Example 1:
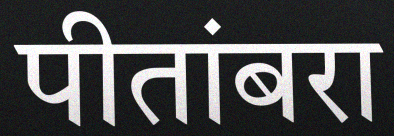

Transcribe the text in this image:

पीतांबरा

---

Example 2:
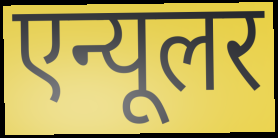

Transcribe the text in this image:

एन्यूलर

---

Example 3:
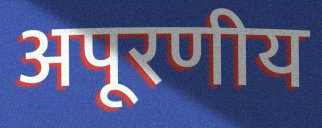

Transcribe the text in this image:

अपूरणीय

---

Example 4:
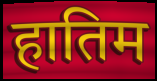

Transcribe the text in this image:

हातिम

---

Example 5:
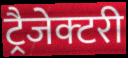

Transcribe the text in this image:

ट्रैजेक्‍टरी